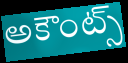
అకౌంట్స్